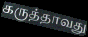
கருத்தாவது